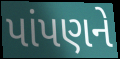
પાંપણને